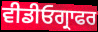
ਵੀਡੀਓਗ੍ਰਾਫਰ